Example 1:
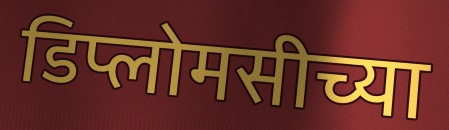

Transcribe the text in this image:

डिप्लोमसीच्या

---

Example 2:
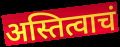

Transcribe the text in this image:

अस्तित्वाचं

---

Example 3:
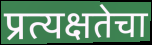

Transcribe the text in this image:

प्रत्यक्षतेचा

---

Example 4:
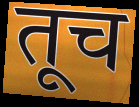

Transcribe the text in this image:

तूच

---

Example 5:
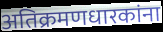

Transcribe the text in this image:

अतिक्रमणधारकांना